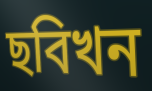
ছবিখন